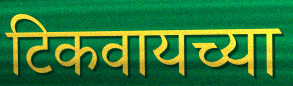
टिकवायच्या